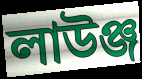
লাউঞ্জ